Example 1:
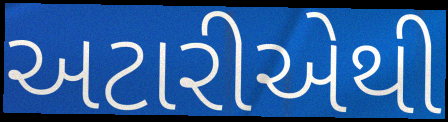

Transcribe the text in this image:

અટારીએથી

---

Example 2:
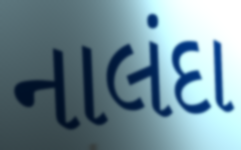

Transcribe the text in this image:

નાલંદા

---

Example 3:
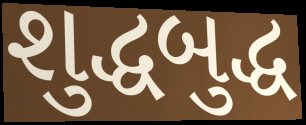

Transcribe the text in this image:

શુદ્ધબુદ્ધ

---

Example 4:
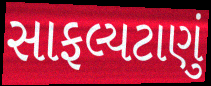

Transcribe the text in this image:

સાફલ્યટાણું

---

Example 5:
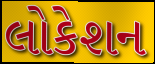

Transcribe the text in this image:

લોકેશન